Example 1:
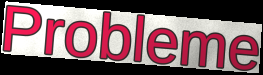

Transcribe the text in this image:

Probleme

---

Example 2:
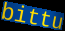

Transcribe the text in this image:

bittu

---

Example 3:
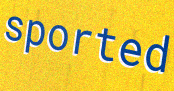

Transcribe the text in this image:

sported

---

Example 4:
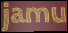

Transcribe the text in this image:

jamu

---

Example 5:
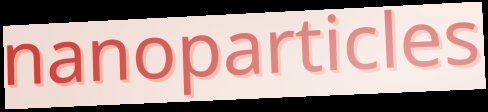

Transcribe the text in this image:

nanoparticles